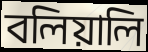
বলিয়ালি